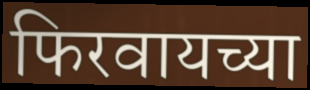
फिरवायच्या